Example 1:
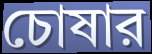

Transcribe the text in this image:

চোষার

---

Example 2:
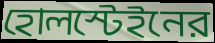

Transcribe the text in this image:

হোলস্টেইনের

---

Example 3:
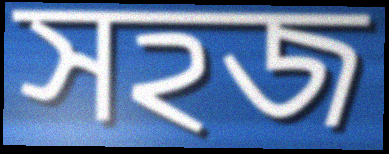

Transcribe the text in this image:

সহজ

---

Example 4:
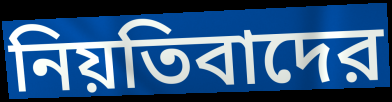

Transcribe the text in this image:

নিয়তিবাদের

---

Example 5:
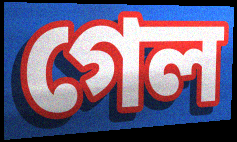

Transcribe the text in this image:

গেল